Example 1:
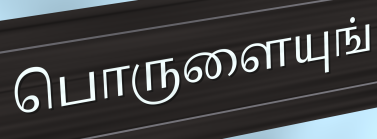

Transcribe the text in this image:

பொருளையுங்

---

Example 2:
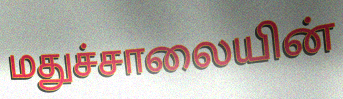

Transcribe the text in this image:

மதுச்சாலையின்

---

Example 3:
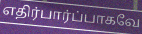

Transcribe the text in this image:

எதிர்பார்ப்பாகவே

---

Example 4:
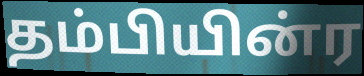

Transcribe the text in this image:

தம்பியின்ர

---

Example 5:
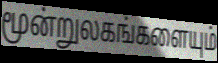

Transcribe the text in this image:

மூன்றுலகங்களையும்